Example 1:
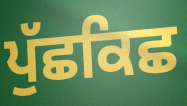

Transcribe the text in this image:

ਪੁੱਛਕਿਛ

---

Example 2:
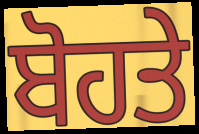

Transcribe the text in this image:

ਬੋਹਤੇ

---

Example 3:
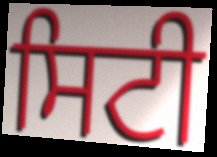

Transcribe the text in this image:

ਸਿਟੀ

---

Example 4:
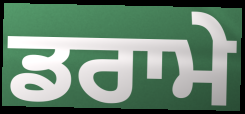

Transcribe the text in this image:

ਡਰਾਮੇ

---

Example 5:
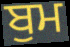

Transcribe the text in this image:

ਬੁਮ